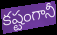
కష్టంగానీ